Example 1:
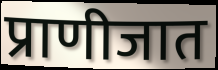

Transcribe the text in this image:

प्राणीजात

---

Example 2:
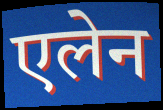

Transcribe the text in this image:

एलेन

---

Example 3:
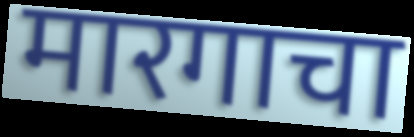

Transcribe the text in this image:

मारगाचा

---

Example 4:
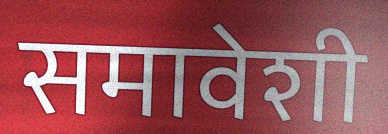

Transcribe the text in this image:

समावेशी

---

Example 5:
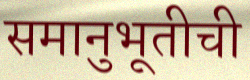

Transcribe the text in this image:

समानुभूतीची